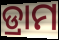
ଡ୍ରାମ